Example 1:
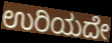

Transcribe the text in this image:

ಉರಿಯದೇ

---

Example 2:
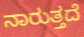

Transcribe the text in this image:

ನಾರುತ್ತದೆ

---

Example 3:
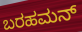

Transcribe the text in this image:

ಬರಹಮನ್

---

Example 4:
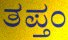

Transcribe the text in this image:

ತಪ್ತಂ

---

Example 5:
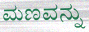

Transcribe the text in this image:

ಮಣವನ್ನು